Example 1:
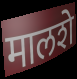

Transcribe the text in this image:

मालशे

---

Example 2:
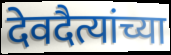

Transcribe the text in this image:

देवदैत्यांच्या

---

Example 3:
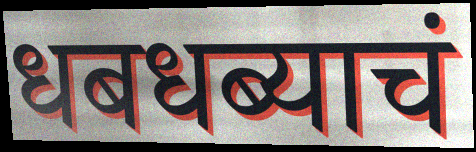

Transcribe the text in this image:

धबधब्याचं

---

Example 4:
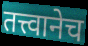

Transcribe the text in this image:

तत्त्वानेच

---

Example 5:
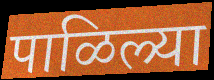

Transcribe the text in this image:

पाळिल्या